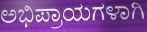
ಅಭಿಪ್ರಾಯಗಳಾಗಿ